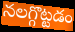
నలగ్గొట్టడం